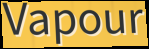
Vapour